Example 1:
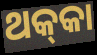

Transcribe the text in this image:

ଥକ୍‌କା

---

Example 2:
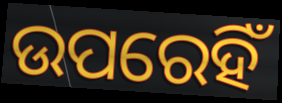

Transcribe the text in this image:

ଉପରେହିଁ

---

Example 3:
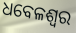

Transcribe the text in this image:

ଧବେଳଶ୍ୱର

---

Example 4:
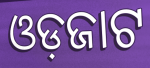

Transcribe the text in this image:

ଓଡ଼ଜାଟ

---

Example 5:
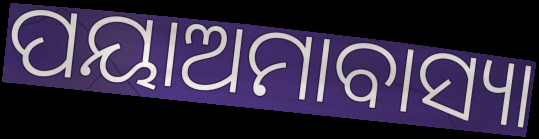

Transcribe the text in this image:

ପୟାଅମାବାସ୍ୟା